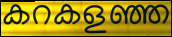
കറകളഞ്ഞ